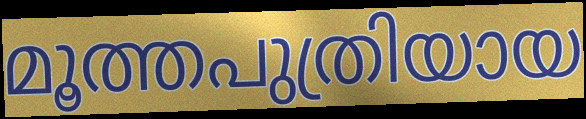
മൂത്തപുത്രിയായ